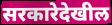
सरकारेदेखील